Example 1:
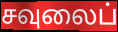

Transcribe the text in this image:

சவுலைப்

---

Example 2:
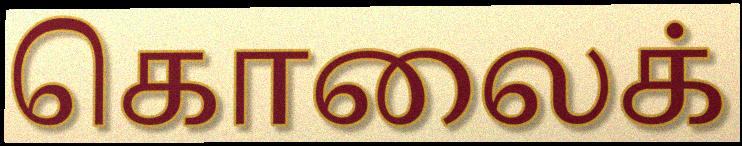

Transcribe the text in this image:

கொலைக்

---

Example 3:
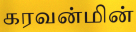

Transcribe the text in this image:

கரவன்மின்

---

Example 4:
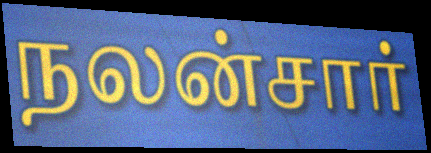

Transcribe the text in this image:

நலன்சார்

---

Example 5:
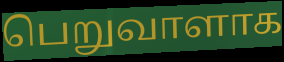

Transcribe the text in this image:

பெறுவாளாக